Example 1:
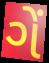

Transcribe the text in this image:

ગેં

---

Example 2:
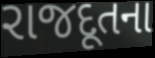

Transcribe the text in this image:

રાજદૂતના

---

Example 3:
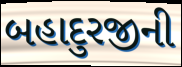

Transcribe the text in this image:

બહાદુરજીની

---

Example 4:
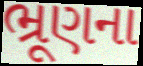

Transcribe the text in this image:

ભ્રૂણના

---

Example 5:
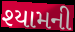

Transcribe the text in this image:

શ્યામની